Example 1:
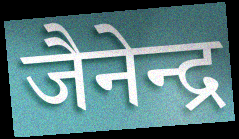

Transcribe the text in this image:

जैनेन्‍द्र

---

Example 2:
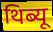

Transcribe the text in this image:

थिब्यू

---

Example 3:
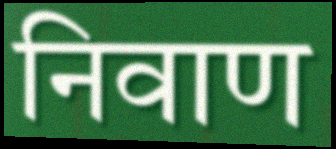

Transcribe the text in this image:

निवाण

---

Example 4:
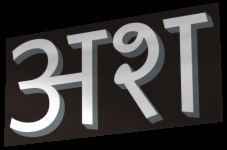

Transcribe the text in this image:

अश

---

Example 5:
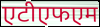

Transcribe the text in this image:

एटीएफएम